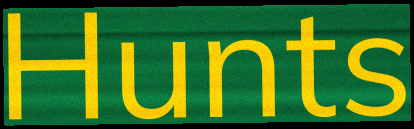
Hunts